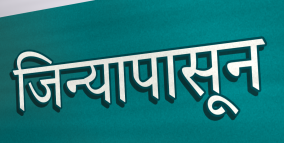
जिन्यापासून